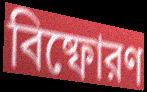
বিষ্ফোরণ